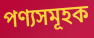
পণ্যসমূহক